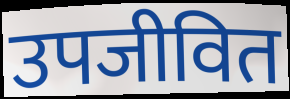
उपजीवित